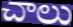
చాలు